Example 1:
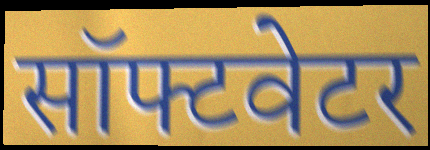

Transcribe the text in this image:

सॉफ्टवेटर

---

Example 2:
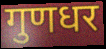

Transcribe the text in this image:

गुणधर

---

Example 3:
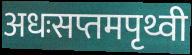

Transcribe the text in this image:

अधःसप्तमपृथ्वी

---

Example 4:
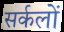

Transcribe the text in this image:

सर्कलों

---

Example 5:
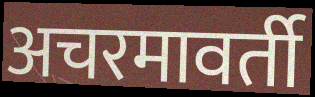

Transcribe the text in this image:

अचरमावर्ती